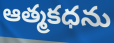
ఆత్మకధను